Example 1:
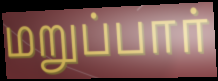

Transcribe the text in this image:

மறுப்பார்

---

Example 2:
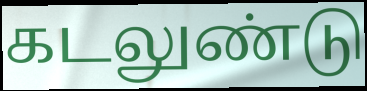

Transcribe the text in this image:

கடலுண்டு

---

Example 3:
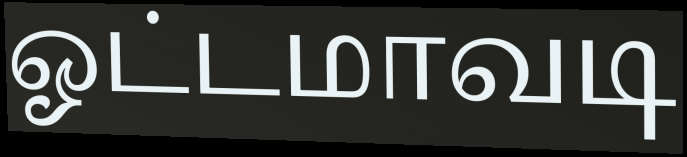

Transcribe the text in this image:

ஓட்டமாவடி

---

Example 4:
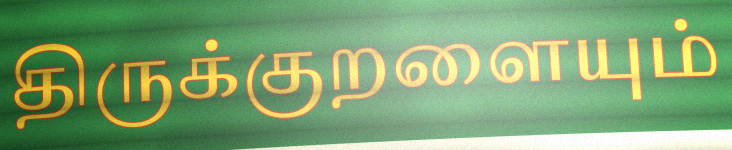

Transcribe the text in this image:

திருக்குறளையும்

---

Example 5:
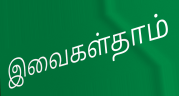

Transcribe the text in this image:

இவைகள்தாம்